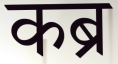
कब्र